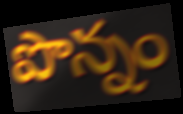
పొన్నం